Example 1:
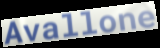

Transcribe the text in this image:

Avallone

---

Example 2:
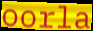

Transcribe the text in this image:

oorla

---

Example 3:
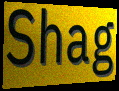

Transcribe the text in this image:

Shag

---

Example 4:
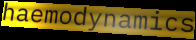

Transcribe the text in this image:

haemodynamics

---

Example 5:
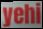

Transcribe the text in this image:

yehi